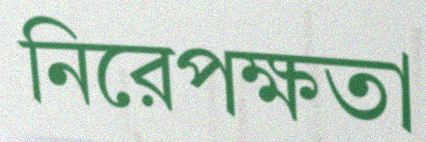
নিরেপক্ষতা